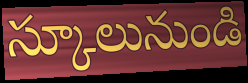
స్కూలునుండి